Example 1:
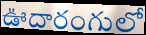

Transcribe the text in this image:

ఊదారంగులో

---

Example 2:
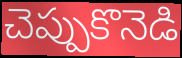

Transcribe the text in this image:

చెప్పుకొనెడి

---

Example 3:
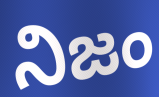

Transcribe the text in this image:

నిజం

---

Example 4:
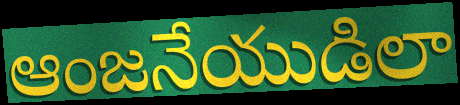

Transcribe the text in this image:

ఆంజనేయుడిలా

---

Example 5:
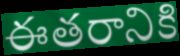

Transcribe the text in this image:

ఈతరానికి